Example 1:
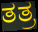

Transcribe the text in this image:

ತತ್ರ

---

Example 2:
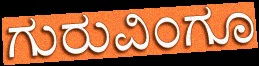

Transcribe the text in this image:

ಗುರುವಿಂಗೂ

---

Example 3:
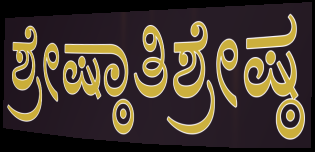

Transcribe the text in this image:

ಶ್ರೇಷ್ಠಾತಿಶ್ರೇಷ್ಠ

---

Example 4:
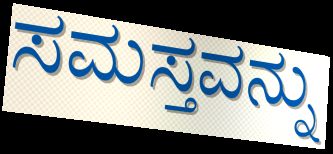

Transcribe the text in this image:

ಸಮಸ್ತವನ್ನು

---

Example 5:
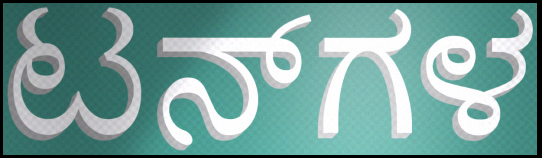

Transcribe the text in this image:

ಟನ್‌ಗಳ